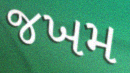
જખમ